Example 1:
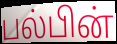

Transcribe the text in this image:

பல்பின்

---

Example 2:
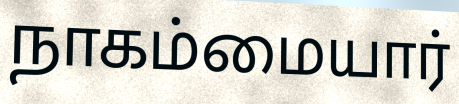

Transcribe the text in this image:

நாகம்மையார்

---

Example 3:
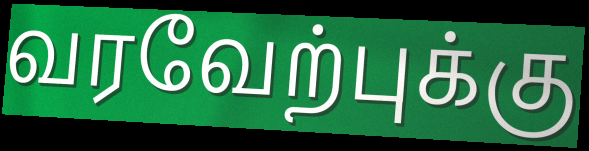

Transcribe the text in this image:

வரவேற்புக்கு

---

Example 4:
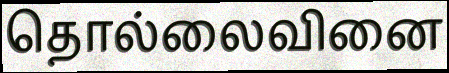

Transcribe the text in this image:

தொல்லைவினை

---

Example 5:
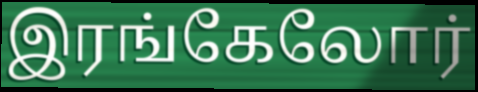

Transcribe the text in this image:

இரங்கேலோர்